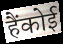
हैंकोई